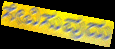
ಸೇವಿಸುವುದು